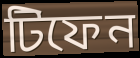
টিফেন